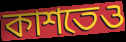
কাশতেও